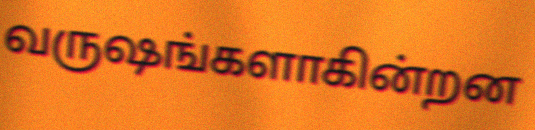
வருஷங்களாகின்றன